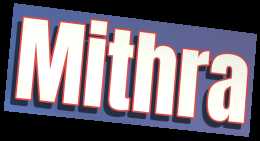
Mithra